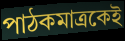
পাঠকমাত্রকেই